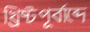
খ্রিষ্টপূর্বাব্দে